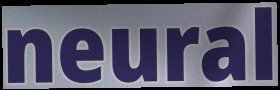
neural